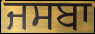
ਜਸਬਾ